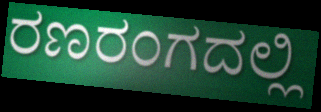
ರಣರಂಗದಲ್ಲಿ